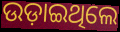
ଉଡ଼ାଇଥିଲେ